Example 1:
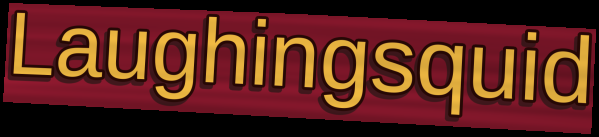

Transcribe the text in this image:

Laughingsquid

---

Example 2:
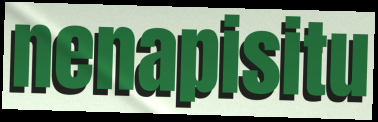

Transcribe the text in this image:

nenapisitu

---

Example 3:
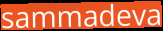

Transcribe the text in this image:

sammadeva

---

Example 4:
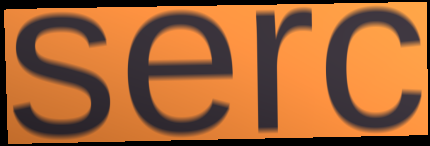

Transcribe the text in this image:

serc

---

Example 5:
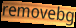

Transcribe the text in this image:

removebg